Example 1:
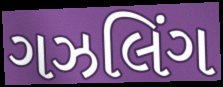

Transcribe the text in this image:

ગઝલિંગ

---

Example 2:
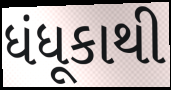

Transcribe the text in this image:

ધંધૂકાથી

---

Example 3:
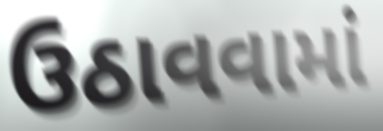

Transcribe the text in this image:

ઉઠાવવામાં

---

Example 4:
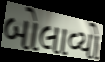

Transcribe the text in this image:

બોલાવ્યો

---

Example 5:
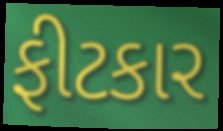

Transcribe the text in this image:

ફીટકાર